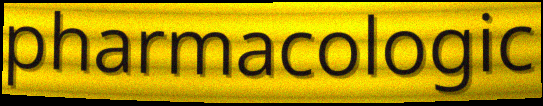
pharmacologic